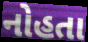
નોહતા